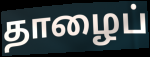
தாழைப்